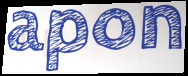
apon